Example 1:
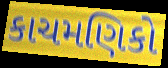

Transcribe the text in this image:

કાચમણિકો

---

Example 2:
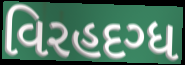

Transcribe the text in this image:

વિરહદગ્ધ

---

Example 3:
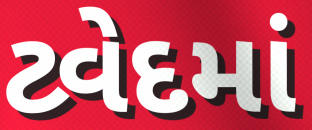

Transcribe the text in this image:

ટ્વેદમાં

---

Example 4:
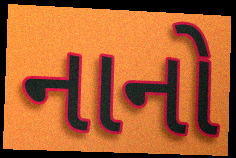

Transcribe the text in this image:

નાનો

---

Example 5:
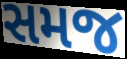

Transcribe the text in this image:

સમજ